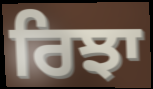
ਰਿਝਾ